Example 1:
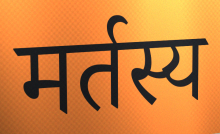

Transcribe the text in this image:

मर्तस्य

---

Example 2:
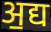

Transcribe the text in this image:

अ॒द्य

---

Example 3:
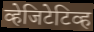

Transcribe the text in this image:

व्हेजिटेटिव्ह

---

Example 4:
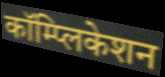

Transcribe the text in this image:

कॉम्प्लिकेशन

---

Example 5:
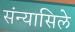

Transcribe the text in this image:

संन्यासिले